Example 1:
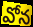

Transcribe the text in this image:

వోన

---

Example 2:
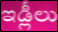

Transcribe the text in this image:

ఇడ్లీలు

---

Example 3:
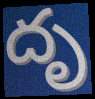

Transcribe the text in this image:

దృ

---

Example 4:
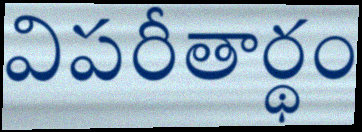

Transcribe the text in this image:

విపరీతార్థం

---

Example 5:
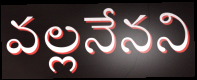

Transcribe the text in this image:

వల్లనేనని